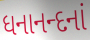
ધનાનન્દનાં